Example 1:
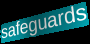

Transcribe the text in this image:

safeguards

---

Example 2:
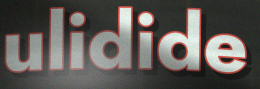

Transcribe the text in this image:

ulidide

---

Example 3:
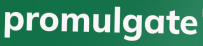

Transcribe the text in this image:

promulgate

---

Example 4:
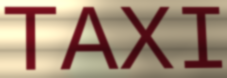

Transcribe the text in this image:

TAXI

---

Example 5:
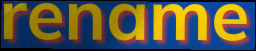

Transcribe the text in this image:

rename